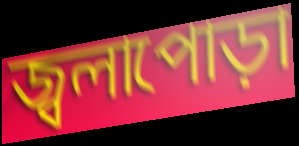
জ্বলাপোড়া